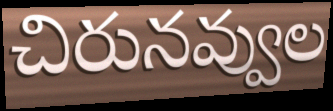
చిరునవ్వుల